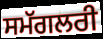
ਸਮੱਗਲਰੀ